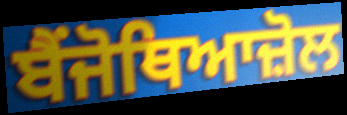
ਬੈਂਜੋਥਿਆਜ਼ੋਲ